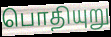
பொதியுறு